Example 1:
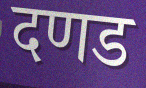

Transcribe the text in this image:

दणड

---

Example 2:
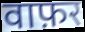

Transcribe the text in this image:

वाफ़र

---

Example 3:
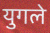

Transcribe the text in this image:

युगले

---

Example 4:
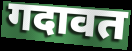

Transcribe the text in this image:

गदावत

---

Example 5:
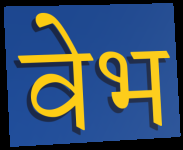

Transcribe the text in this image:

वेभ